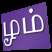
ழம்